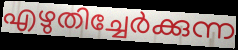
എഴുതിച്ചേർക്കുന്ന